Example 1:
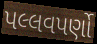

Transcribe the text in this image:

પલ્લવપર્ણો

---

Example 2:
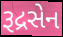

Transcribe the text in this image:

રૂદ્રસેન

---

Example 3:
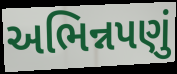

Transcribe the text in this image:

અભિન્નપણું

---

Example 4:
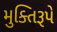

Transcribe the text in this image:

મુક્તિરૂપે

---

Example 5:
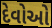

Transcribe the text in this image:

દેવોઓ